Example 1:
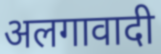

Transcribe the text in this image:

अलगावादी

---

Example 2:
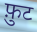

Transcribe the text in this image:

फ़ुट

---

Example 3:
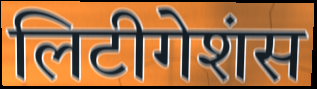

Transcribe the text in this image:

लिटीगेशंस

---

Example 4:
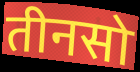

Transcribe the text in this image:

तीनसो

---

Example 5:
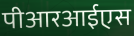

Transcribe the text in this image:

पीआरआईएस